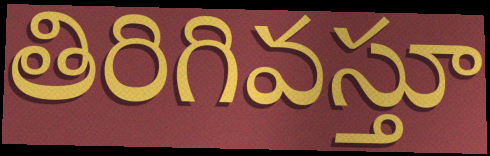
తిరిగివస్తూ